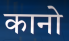
कानो